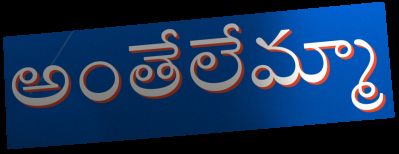
అంతేలేమ్మా